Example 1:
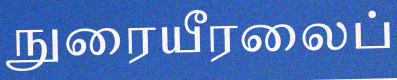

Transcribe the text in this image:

நுரையீரலைப்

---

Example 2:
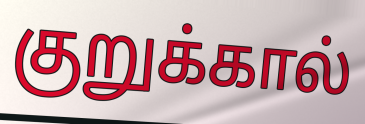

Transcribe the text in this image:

குறுக்கால்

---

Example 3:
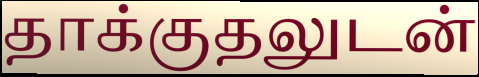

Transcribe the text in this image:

தாக்குதலுடன்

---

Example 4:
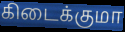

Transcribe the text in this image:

கிடைக்குமா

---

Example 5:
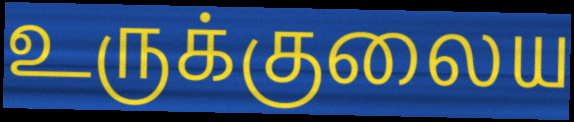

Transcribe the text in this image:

உருக்குலைய